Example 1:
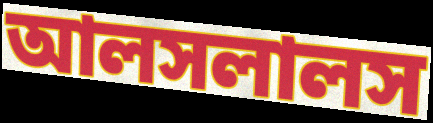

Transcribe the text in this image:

আলসলালস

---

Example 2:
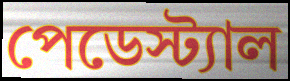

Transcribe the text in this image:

পেডেস্ট্যাল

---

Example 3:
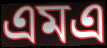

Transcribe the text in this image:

এমএ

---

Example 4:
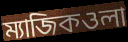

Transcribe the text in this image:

ম্যাজিকওলা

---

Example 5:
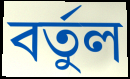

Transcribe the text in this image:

বর্তুল